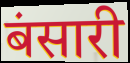
बंसारी